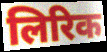
लिरिक